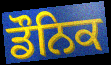
ਡੌਨਿਕ